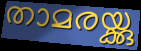
താമരയ്ക്കു